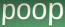
poop